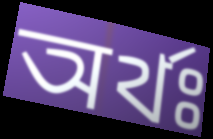
অৰ্থঃ